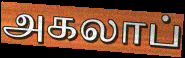
அகலாப்